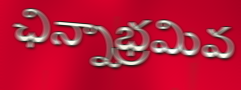
ఛిన్నాభ్రమివ